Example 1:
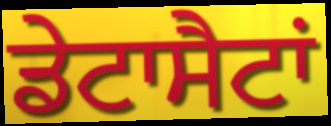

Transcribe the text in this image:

ਡੇਟਾਸੈਟਾਂ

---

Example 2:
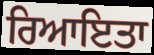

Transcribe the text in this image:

ਰਿਆਇਤਾ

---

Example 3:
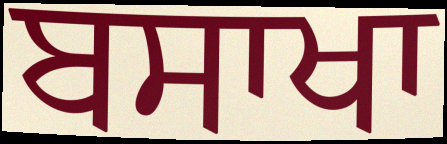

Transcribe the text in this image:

ਬਸਾਖਾ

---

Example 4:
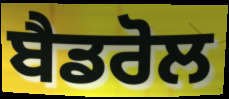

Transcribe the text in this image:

ਬੈਡਰੋਲ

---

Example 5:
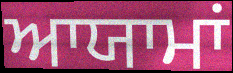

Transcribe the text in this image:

ਆਯਾਮਾਂ